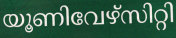
യൂണിവേഴ്സിറ്റി